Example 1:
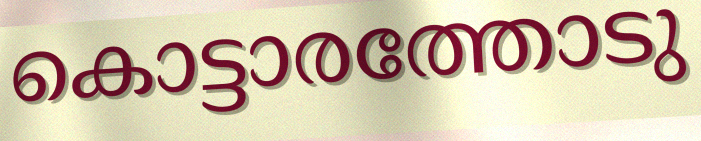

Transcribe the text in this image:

കൊട്ടാരത്തോടു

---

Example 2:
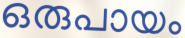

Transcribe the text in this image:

ഒരുപായം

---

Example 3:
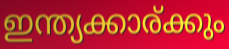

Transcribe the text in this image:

ഇന്ത്യക്കാര്ക്കും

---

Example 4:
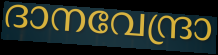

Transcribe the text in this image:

ദാനവേന്ദ്രാ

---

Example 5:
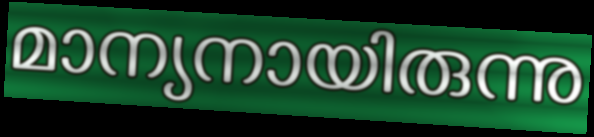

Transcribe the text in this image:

മാന്യനായിരുന്നു